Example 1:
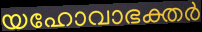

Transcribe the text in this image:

യഹോവാഭക്തർ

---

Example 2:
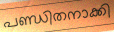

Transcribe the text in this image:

പണ്ഡിതനാക്കി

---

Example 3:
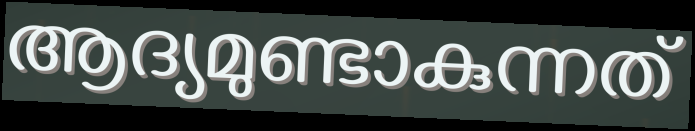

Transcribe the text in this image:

ആദ്യമുണ്ടാകുന്നത്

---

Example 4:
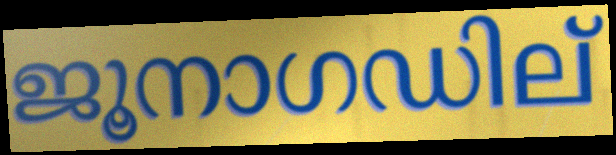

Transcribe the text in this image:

ജൂനാഗഡില്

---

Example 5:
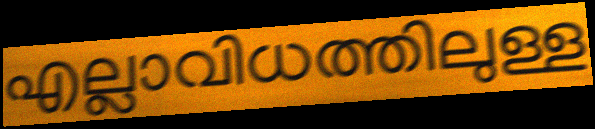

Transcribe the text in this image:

എല്ലാവിധത്തിലുള്ള